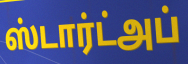
ஸ்டார்ட்அப்